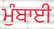
ਮੁੰਬਾਈ